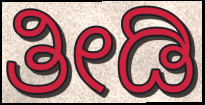
ತೀಡಿ